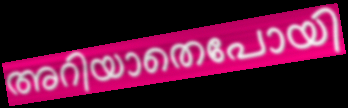
അറിയാതെപോയി